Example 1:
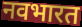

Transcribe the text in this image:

नवभारत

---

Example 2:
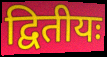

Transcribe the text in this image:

द्वितीयः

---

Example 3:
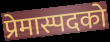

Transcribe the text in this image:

प्रेमास्पदको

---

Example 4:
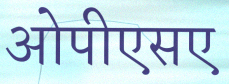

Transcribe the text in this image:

ओपीएसए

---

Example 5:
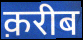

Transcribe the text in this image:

क़रीब